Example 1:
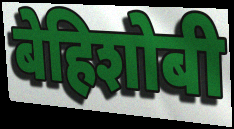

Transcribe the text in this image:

बेहिशोबी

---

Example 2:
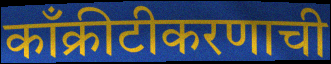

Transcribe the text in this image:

काँक्रीटीकरणाची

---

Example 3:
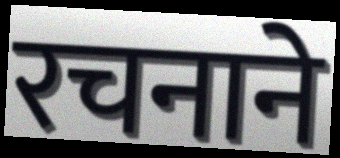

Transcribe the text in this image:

रचनाने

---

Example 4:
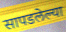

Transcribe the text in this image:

सापडलेल्‍या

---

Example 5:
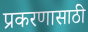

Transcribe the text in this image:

प्रकरणासाठी